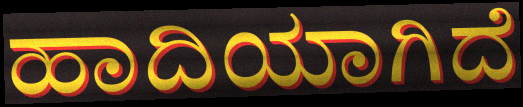
ಹಾದಿಯಾಗಿದೆ